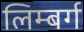
लिम्बर्ग